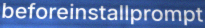
beforeinstallprompt